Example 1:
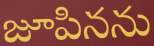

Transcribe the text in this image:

జూపినను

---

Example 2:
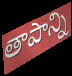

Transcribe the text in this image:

తాపాన్ని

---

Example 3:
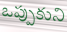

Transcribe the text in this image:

ఒప్పుకుని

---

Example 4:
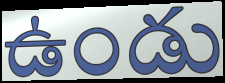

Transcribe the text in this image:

ఉండు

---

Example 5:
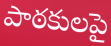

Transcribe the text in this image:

పాఠకులపై